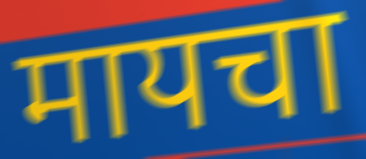
मायचा